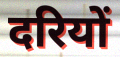
दरियों